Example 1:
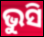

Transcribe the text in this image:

ଭୁସି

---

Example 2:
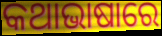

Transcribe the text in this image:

କଥାଭାଷାରେ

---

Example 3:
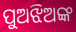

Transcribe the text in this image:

ପୁଅଝିଅଙ୍କ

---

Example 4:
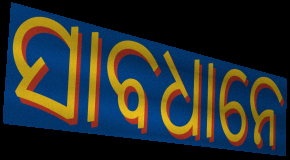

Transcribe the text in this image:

ସାବଧାନେ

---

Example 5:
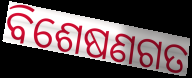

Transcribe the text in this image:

ବିଶେଷଣଗତ